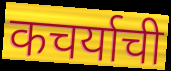
कचर्याची